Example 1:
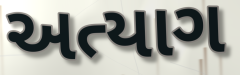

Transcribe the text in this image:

અત્યાગ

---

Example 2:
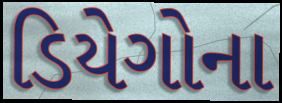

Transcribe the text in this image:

ડિયેગોના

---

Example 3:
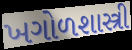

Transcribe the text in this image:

ખગોળશાસ્ત્રી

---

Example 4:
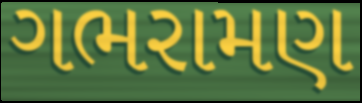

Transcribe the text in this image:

ગભરામણ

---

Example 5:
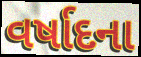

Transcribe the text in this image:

વર્ષાદના